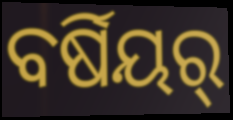
ବର୍ଷିୟର୍